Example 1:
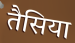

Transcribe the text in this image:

तैसिया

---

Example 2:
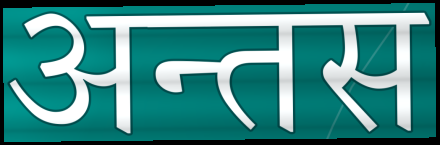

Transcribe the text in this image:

अन्तस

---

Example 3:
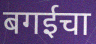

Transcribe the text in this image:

बगईचा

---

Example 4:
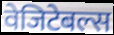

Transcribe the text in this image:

वेजिटेबल्स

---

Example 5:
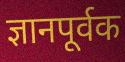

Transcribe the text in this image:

ज्ञानपूर्वक